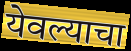
येवल्याचा